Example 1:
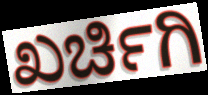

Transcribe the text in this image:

ಖರ್ಚಿಗಿ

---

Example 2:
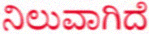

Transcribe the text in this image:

ನಿಲುವಾಗಿದೆ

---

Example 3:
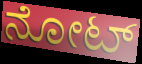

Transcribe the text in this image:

ನೋಟ್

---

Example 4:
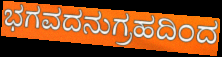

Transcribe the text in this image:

ಭಗವದನುಗ್ರಹದಿಂದ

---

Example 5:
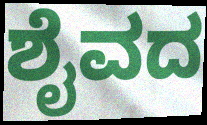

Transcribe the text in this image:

ಶೈವದ